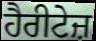
ਹੈਰੀਟੇਜ਼